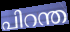
പിറന്ത